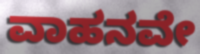
ವಾಹನವೇ